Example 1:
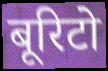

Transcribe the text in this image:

बूरिटो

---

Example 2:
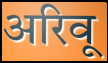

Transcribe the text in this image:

अरिवू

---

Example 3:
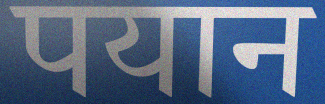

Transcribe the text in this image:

पयान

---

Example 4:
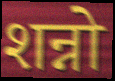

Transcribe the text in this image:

शन्नो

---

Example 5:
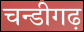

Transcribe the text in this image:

चन्डीगढ़